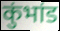
कुंभांड